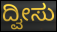
ದ್ವೀಸು